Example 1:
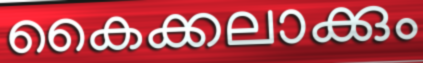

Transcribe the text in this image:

കൈക്കലാക്കും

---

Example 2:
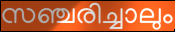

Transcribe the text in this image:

സഞ്ചരിച്ചാലും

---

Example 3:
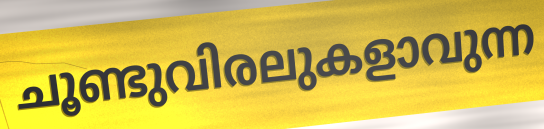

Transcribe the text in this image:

ചൂണ്ടുവിരലുകളാവുന്ന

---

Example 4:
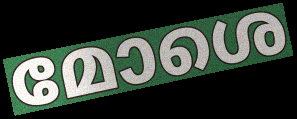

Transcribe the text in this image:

മോശെ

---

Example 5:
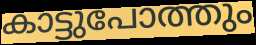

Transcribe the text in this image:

കാട്ടുപോത്തും